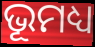
ଭୂମଧ୍ୟ